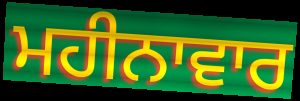
ਮਹੀਨਾਵਾਰ